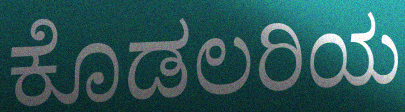
ಕೊಡಲರಿಯ